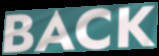
BACK